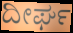
ದೀರ್ಘ